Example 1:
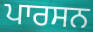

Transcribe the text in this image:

ਪਾਰਸਨ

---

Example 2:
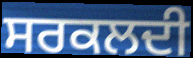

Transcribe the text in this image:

ਸਰਕਲਦੀ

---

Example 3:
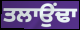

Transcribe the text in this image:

ਤਲਾਉਂਢਾ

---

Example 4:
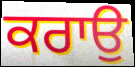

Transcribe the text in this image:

ਕਰਾਉ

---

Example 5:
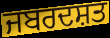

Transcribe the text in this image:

ਜਬਰਦਸ਼ਤ